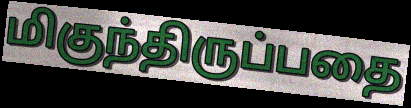
மிகுந்திருப்பதை